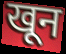
खून